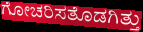
ಗೋಚರಿಸತೊಡಗಿತ್ತು